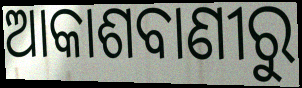
ଆକାଶବାଣୀରୁ